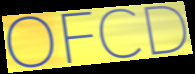
OFCD